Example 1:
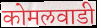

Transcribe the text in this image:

कोमलवाडी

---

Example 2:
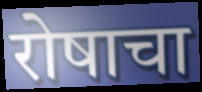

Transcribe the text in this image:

रोषाचा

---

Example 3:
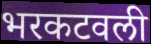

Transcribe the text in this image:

भरकटवली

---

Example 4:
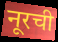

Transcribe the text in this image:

नूरची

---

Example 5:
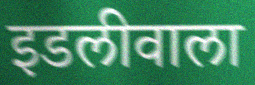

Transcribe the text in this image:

इडलीवाला